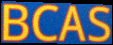
BCAS